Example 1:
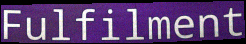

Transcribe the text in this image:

Fulfilment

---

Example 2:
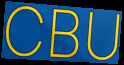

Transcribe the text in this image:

CBU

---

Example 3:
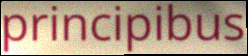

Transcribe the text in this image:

principibus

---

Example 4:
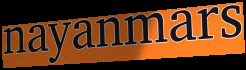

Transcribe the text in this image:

nayanmars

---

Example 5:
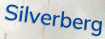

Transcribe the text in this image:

Silverberg